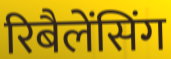
रिबैलेंसिंग